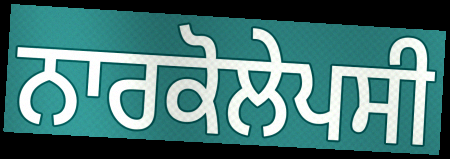
ਨਾਰਕੋਲੇਪਸੀ